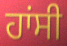
ਹਾਂਸੀ